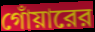
গোঁয়ারের